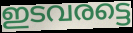
ഇടവരട്ടെ